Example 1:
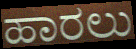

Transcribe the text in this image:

ಹಾರಲು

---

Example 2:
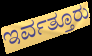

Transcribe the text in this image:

ಇರ್ವತ್ತೂರು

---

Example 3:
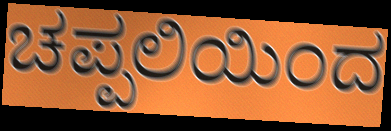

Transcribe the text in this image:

ಚಪ್ಪಲಿಯಿಂದ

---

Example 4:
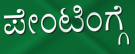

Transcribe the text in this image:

ಪೇಂಟಿಂಗ್ಗೆ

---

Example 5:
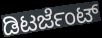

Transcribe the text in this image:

ಡಿಟರ್ಜೆಂಟ್